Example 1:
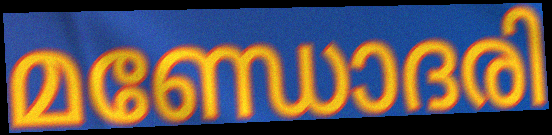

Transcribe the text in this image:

മണ്ഡോദരി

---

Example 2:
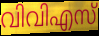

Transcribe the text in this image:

വിവിഎസ്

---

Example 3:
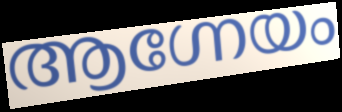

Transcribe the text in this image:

ആഗ്നേയം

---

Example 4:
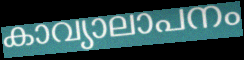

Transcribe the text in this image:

കാവ്യാലാപനം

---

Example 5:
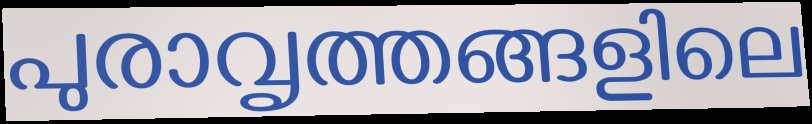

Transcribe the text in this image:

പുരാവൃത്തങ്ങളിലെ